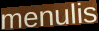
menulis